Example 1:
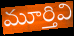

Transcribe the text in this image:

మూర్తివి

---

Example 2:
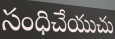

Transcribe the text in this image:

సంధిచేయుచు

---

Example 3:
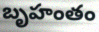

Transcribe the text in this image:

బృహంతం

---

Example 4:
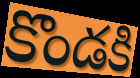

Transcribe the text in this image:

కొండకి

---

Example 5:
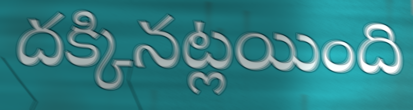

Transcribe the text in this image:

దక్కినట్లయింది